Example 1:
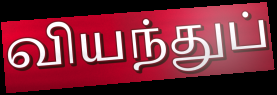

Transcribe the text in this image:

வியந்துப்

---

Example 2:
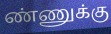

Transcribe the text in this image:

ண்ணுக்கு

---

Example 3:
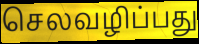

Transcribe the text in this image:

செலவழிப்பது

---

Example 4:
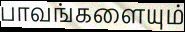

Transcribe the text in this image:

பாவங்களையும்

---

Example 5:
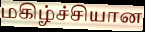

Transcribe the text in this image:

மகிழ்ச்சியான